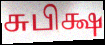
சுபிக்ஷ